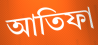
আতিফা